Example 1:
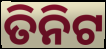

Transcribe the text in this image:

ତିନିଟ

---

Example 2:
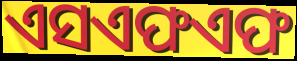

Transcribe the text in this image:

ଏସଏଫଏଫ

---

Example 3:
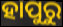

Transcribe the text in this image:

ହାପୁରୁ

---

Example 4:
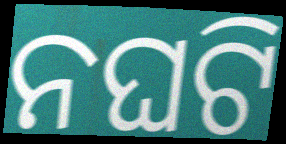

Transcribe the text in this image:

ନଘଟି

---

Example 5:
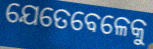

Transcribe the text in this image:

ଯେତେବେଳେକୁ